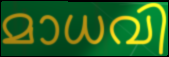
മാധവി